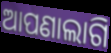
ଆପଣାଲାଗି